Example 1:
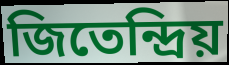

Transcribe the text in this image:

জিতেন্দ্রিয়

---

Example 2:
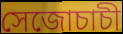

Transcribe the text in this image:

সেজোচাচী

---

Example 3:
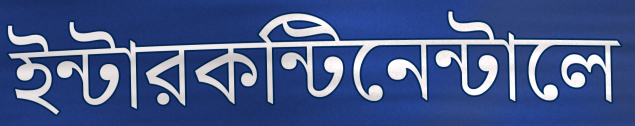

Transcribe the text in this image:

ইন্টারকন্টিনেন্টালে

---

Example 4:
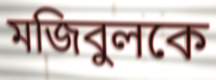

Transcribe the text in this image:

মজিবুলকে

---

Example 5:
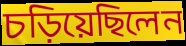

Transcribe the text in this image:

চড়িয়েছিলেন